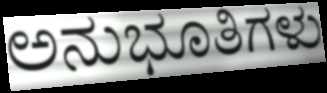
ಅನುಭೂತಿಗಳು